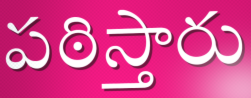
పఠిస్తారు